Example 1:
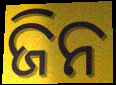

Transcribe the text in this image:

ଜିନ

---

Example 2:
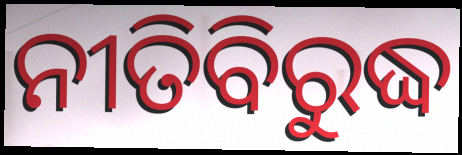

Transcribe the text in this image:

ନୀତିବିରୁଦ୍ଧ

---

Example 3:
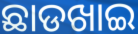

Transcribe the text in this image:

ଛାଡଖାଇ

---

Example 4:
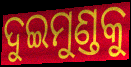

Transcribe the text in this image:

ଦୁଇମୁଣ୍ଡକୁ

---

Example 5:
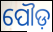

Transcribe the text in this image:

ପୌଡ଼